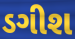
ડગીશ